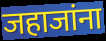
जहाजांना